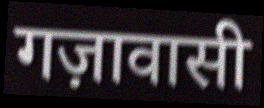
गज़ावासी